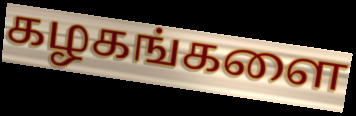
கழகங்களை